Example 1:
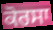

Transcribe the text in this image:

ਕੋਰਸਾ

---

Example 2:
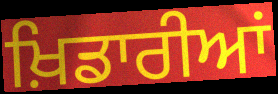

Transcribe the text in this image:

ਖ਼ਿਡਾਰੀਆਂ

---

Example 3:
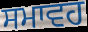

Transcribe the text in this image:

ਸਮਾਵਹ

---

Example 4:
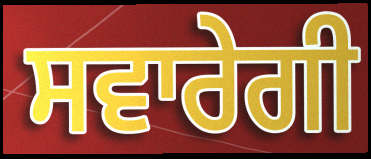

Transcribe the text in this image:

ਸਵਾਰੇਗੀ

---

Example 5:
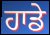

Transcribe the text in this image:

ਹਾਡੇ